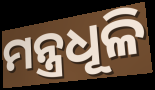
ମନ୍ତ୍ରଧୂଳି